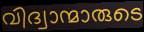
വിദ്വാന്മാരുടെ